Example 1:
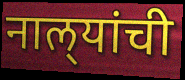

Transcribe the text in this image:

नाल्यांची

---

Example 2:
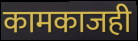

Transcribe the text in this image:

कामकाजही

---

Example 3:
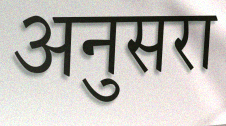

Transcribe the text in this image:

अनुसरा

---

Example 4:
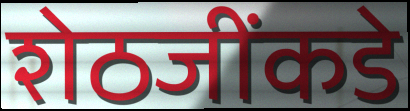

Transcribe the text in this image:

शेठजींकडे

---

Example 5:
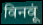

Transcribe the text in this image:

विनवूं